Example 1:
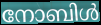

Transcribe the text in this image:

നോബിൾ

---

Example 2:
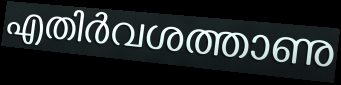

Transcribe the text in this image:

എതിർവശത്താണു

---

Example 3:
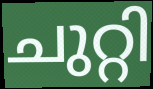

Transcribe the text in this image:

ചുറ്റി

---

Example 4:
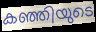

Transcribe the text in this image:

കഞ്ഞിയുടെ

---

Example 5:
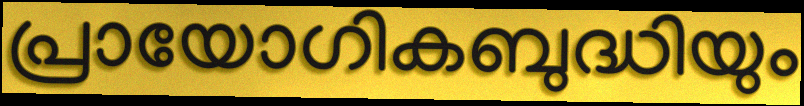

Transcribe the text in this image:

പ്രായോഗികബുദ്ധിയും